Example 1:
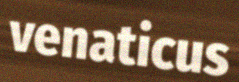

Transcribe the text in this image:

venaticus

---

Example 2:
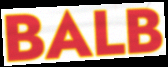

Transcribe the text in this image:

BALB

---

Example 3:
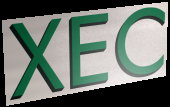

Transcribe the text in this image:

XEC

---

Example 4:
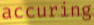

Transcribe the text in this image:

accuring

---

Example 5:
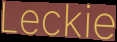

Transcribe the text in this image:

Leckie